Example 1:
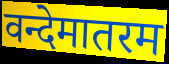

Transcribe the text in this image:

वन्देमातरम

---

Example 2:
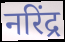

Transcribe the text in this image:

नरिंद्र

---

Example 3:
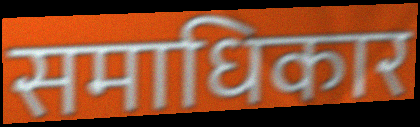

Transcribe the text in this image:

समाधिकार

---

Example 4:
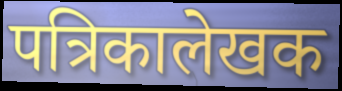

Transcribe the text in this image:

पत्रिकालेखक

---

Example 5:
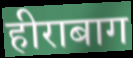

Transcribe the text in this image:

हीराबाग